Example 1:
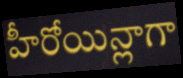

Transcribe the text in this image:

హీరోయిన్లాగా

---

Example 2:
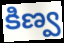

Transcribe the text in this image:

కిణ్వ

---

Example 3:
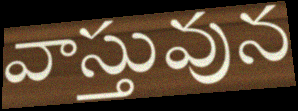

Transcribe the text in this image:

వాస్తువున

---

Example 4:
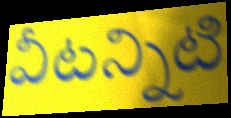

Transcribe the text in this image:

వీటన్నిటి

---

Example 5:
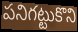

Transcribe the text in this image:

పనిగట్టుకొని